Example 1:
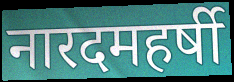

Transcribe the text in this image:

नारदमहर्षी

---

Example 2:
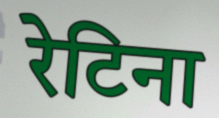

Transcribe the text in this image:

रेटिना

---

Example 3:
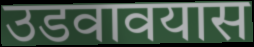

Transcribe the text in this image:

उडवावयास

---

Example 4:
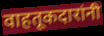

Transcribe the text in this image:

वाहतूकदारांनी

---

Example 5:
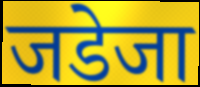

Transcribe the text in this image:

जडेजा